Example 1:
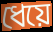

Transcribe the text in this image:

ধেয়ে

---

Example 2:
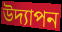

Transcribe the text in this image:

উদ্যাপন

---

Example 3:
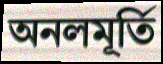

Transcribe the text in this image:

অনলমূর্তি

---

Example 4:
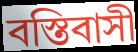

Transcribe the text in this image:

বস্তিবাসী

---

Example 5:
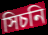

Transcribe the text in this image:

সিচনি